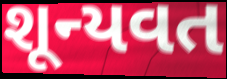
શૂન્યવત